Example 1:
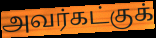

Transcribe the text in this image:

அவர்கட்குக்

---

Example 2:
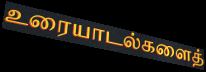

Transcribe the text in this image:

உரையாடல்களைத்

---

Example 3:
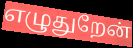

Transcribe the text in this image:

எழுதுறேன்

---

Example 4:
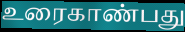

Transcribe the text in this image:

உரைகாண்பது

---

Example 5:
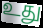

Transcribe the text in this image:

உது